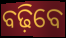
ବଢ଼ିବେ